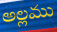
అల్లము